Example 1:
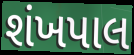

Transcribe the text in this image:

શંખપાલ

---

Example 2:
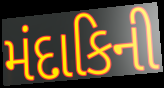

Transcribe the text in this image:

મંદાકિની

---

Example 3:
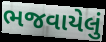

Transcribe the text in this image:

ભજવાયેલું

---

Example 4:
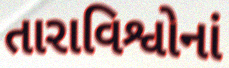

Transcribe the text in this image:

તારાવિશ્વોનાં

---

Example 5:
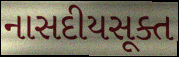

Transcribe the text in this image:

નાસદીયસૂક્ત